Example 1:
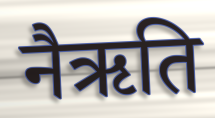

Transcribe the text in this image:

नैऋति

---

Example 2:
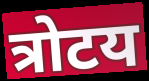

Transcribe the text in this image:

त्रोटय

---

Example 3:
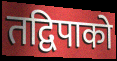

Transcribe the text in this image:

तद्विपाको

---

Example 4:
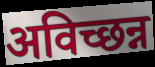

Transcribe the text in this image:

अविच्छन्न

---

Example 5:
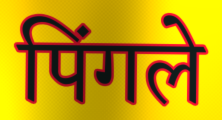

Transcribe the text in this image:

पिंगले